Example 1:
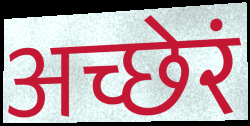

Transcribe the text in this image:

अच्छेरं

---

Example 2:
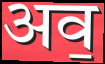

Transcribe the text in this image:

अव॒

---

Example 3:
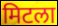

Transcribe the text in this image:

मिटला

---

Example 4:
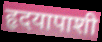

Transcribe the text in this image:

हृदयापाशी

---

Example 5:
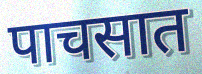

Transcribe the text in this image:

पाचसात